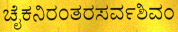
ಚೈಕನಿರಂತರಸರ್ವಶಿವಂ